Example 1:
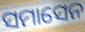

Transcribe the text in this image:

ସମାସେନ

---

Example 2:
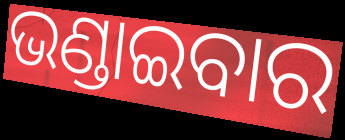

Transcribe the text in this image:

ଭଣ୍ଡାଇବାର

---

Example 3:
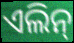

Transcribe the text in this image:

ଏଲିନ୍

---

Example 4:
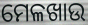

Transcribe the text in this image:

ମେଳଖାଉ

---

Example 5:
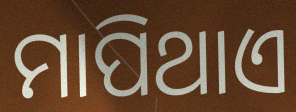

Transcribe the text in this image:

ମାପିଥାଏ